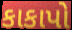
કાકાપો